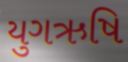
યુગઋષિ